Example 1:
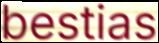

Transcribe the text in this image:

bestias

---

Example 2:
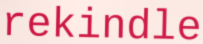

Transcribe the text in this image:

rekindle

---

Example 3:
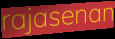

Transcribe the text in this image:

rajasenan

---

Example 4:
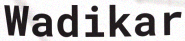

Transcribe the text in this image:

Wadikar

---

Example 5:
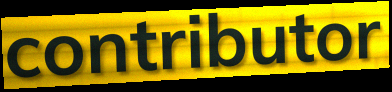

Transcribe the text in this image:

contributor